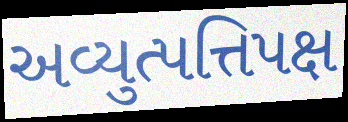
અવ્યુત્પત્તિપક્ષ